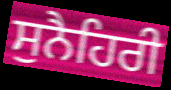
ਸੁਨੈਹਿਰੀ